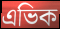
এভিক